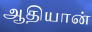
ஆதியான்